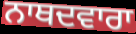
ਨਾਥਦਵਾਰਾ